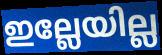
ഇല്ലേയില്ല